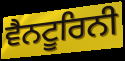
ਵੈਨਟੂਰਿਨੀ